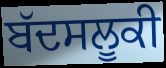
ਬੱਦਸਲੂਕੀ